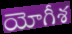
యోగీశ